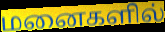
மனைகளில்